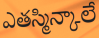
ఎతస్మిన్కాలే